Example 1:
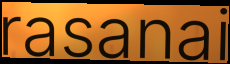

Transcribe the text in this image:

rasanai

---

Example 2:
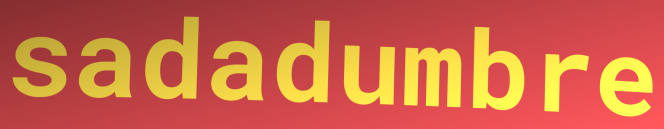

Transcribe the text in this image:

sadadumbre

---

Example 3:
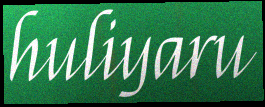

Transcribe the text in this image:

huliyaru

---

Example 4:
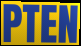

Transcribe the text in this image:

PTEN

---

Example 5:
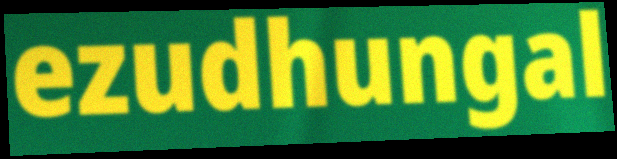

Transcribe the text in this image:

ezudhungal